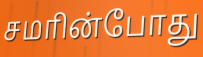
சமரின்போது